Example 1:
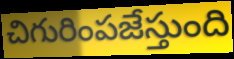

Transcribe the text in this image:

చిగురింపజేస్తుంది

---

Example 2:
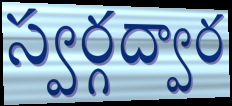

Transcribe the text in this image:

స్వర్గద్వార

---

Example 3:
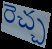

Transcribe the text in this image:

రెచ్చ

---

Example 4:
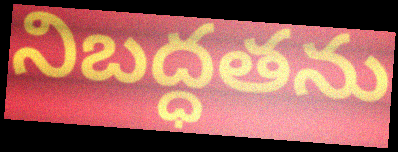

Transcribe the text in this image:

నిబద్ధతను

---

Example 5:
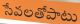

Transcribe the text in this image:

సేవలతోపాటు